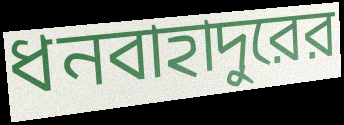
ধনবাহাদুরের